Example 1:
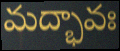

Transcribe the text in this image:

మద్భావః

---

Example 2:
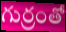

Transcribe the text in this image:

గుర్రంతో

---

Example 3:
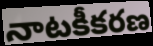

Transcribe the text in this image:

నాటకీకరణ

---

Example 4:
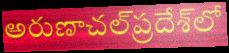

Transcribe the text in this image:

అరుణాచల్‌ప్రదేశ్‌లో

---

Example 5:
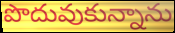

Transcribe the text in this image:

పొదువుకున్నాను